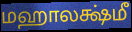
மஹாலக்ஷ்மீ